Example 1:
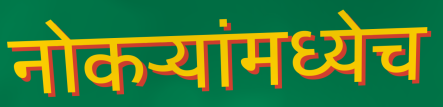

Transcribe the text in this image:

नोकऱ्यांमध्येच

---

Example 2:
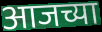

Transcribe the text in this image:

आजच्या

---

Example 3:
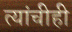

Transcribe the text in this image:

त्यांचीही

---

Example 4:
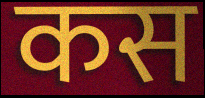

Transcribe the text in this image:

कस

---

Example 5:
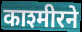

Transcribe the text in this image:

काश्मीरने